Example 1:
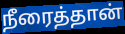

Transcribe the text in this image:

நீரைத்தான்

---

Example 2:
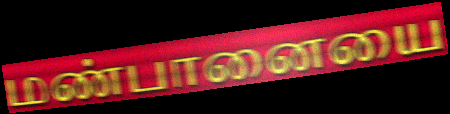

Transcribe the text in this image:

மண்பானையை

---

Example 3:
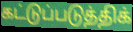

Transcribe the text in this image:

கட்டுப்படுத்திக்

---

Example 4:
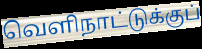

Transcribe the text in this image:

வெளிநாட்டுக்குப்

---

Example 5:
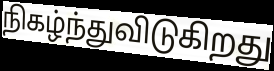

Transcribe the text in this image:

நிகழ்ந்துவிடுகிறது